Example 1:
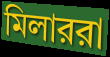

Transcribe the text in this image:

মিলাররা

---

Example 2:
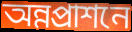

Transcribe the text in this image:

অন্নপ্রাশনে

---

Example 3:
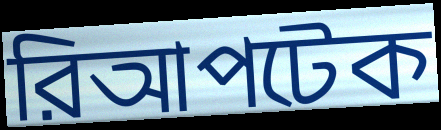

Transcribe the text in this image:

রিআপটেক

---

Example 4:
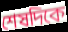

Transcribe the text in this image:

শেষদিকে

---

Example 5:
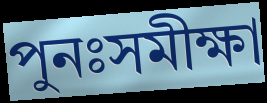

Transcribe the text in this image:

পুনঃসমীক্ষা